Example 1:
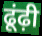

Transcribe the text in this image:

ढूंढ़ी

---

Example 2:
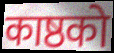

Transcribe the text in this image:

काष्ठको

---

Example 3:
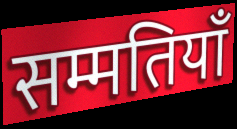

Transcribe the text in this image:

सम्मतियाँ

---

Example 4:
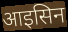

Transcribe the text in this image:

आइसिन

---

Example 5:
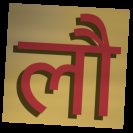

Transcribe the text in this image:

लौ